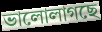
ভালোলাগছে